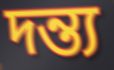
দন্ত্য